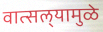
वात्सल्यामुळे